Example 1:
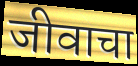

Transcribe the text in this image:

जीवाचा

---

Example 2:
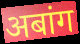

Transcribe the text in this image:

अबांग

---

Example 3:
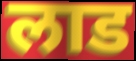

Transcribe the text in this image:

लाड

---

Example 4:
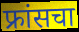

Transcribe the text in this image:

फ्रांसचा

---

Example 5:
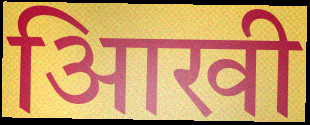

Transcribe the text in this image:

आिखी